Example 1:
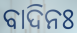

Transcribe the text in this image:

ବାଦିନଃ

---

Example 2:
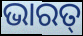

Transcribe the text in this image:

ଭାରତ୍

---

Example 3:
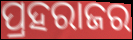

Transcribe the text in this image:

ପ୍ରହରାଜର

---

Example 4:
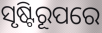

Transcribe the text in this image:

ସୃଷ୍ଟିରୂପରେ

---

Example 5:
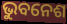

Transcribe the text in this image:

ଭୁବନେଶ